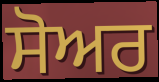
ਸੋਅਰ